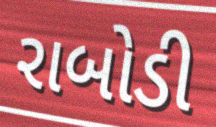
રાબોડી